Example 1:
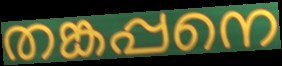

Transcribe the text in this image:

തങ്കപ്പനെ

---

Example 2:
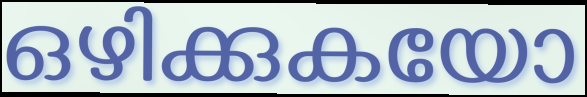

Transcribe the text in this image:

ഒഴിക്കുകയോ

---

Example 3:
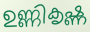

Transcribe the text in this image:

ഉണ്ണികൃഷ്ണ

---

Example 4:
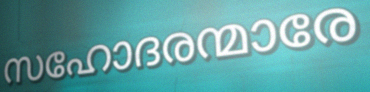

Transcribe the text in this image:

സഹോദരന്മാരേ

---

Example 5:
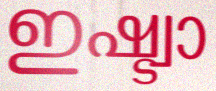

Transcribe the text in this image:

ഇഷ്ട്വാ